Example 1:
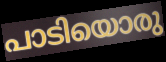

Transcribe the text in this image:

പാടിയൊരു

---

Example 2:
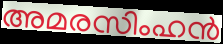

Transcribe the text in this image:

അമരസിംഹൻ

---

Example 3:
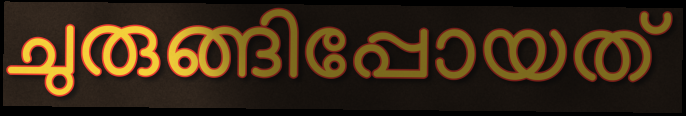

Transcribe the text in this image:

ചുരുങ്ങിപ്പോയത്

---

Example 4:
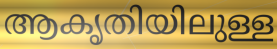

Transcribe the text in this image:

ആകൃതിയിലുള്ള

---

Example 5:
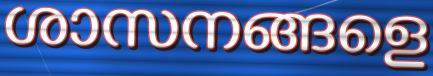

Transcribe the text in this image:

ശാസനങ്ങളെ